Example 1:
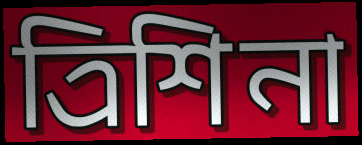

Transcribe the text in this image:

ত্রিশিনা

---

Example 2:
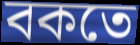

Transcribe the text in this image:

বকতে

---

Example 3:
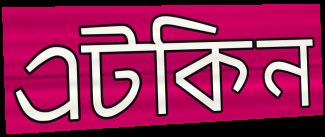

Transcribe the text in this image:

এটকিন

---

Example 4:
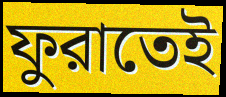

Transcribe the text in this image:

ফুরাতেই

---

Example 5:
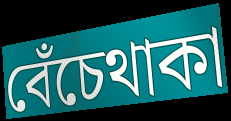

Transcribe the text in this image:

বেঁচেথাকা